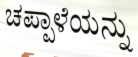
ಚಪ್ಪಾಳೆಯನ್ನು